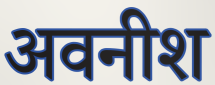
अवनीश